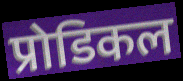
प्रोडिकल